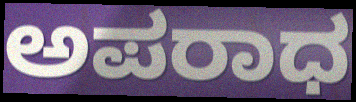
ಅಪರಾಧ